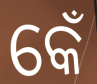
କେଁ